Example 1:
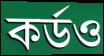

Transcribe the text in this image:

কর্ডও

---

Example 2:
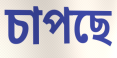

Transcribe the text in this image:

চাপছে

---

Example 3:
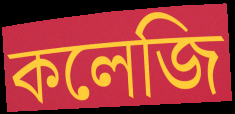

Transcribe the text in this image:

কলেজি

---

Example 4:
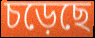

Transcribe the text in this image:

চড়েছে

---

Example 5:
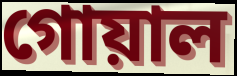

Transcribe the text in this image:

গোয়াল